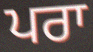
ਪਰਾ